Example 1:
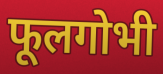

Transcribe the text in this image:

फूलगोभी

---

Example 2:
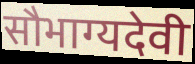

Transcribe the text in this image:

सौभाग्यदेवी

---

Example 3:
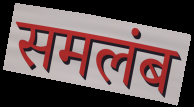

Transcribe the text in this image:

समलंब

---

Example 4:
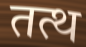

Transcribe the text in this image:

तत्थ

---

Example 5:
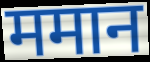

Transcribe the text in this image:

ममान